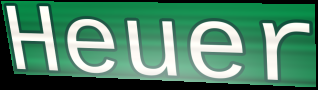
Heuer